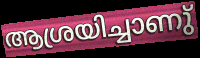
ആശ്രയിച്ചാണു്